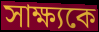
সাক্ষ্যকে